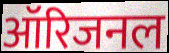
ऑरिजनल